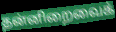
தன்னிறைவைக்